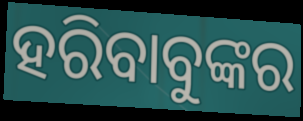
ହରିବାବୁଙ୍କର